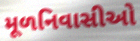
મૂળનિવાસીઓ